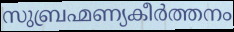
സുബ്രഹ്മണ്യകീർത്തനം